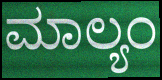
ಮಾಲ್ಯಂ